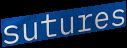
sutures